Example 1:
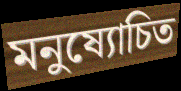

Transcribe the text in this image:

মনুষ্যোচিত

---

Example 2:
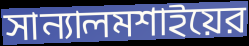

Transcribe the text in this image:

সান্যালমশাইয়ের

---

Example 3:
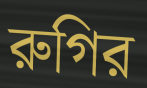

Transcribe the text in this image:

রুগির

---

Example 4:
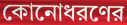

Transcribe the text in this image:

কোনোধরণের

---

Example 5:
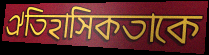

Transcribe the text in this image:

ঐতিহাসিকতাকে